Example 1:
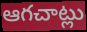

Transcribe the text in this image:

ఆగచాట్లు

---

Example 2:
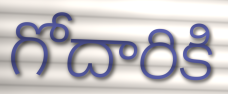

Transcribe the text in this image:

గోదారికి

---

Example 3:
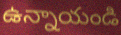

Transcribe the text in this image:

ఉన్నాయండి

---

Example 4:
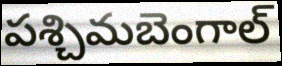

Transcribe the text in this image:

పశ్చిమబెంగాల్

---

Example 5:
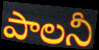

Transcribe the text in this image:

పాలనీ